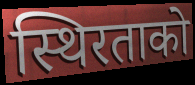
स्थिरताको